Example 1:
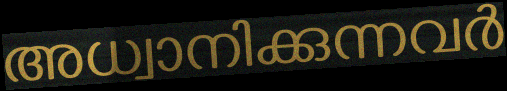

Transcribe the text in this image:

അധ്വാനിക്കുന്നവർ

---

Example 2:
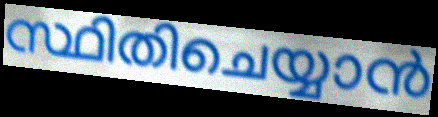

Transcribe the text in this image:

സ്ഥിതിചെയ്യാൻ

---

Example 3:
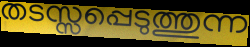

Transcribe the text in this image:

തടസ്സപ്പെടുത്തുന്ന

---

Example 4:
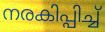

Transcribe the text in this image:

നരകിപ്പിച്ച്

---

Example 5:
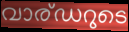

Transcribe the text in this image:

വാര്ഡറുടെ